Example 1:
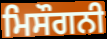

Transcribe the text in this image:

ਮਿਸੌਗਨੀ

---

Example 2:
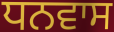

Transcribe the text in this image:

ਧਨਵਾਸ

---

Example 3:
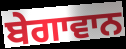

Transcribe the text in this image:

ਬੇਗਾਵਾਨ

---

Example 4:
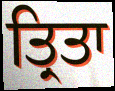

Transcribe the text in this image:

ਤ੍ਰਿਤਾ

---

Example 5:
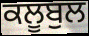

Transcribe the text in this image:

ਕਲੂਬੁਲ